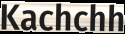
Kachchh